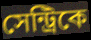
সেন্ট্রিকে